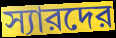
স্যারদের